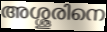
അശ്ശൂരിനെ